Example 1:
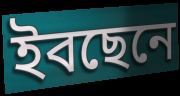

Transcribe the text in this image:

ইবছেনে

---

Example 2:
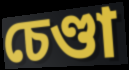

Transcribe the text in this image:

চেণ্ডা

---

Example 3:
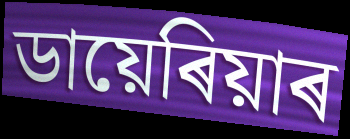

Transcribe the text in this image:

ডায়েৰিয়াৰ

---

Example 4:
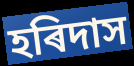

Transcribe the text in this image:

হৰিদাস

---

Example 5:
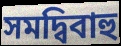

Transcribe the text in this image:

সমদ্বিবাহু